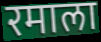
रमाला